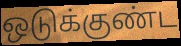
ஒடுக்குண்ட